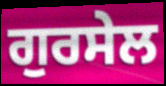
ਗੁਰਸੇਲ